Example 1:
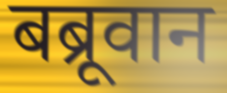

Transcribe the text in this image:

बब्रूवान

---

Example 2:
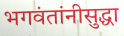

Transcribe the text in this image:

भगवंतांनीसुद्धा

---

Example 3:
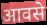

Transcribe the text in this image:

आवसे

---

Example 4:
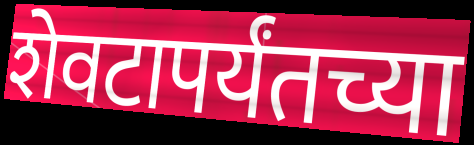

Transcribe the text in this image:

शेवटापर्यंतच्या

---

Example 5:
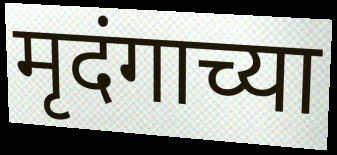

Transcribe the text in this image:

मृदंगाच्या